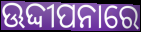
ଊଦ୍ଦୀପନାରେ